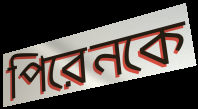
পিরেনকে